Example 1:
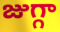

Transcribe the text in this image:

జుగ్గా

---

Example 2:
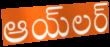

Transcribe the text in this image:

ఆయ్‌లర్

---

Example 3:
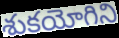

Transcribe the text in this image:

శుకయోగిని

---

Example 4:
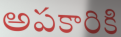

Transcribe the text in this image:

అపకారికి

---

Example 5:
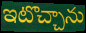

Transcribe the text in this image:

ఇటొచ్చాను